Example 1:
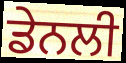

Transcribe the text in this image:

ਡੇਨਲੀ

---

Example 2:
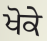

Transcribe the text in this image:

ਖੋਕੇ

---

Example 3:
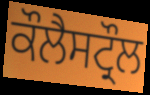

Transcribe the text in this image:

ਕੌਲੈਸਟ੍ਰੌਲ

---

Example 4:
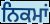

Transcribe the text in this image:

ਨਿਕਮਾਂ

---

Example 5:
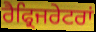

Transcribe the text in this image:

ਰੈਫ੍ਰਿਜਰੇਟਰਾਂ